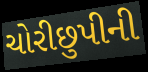
ચોરીછુપીની